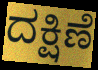
ದಕ್ಷಿಣೆ